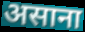
असाना